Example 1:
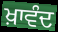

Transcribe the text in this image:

ਖ਼ਾਵੰਦ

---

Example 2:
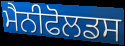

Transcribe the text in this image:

ਮੈਨੀਫੋਲਡਸ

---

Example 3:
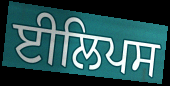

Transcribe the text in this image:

ਈਲਿਪਸ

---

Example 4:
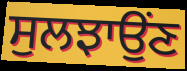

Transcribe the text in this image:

ਸੁਲਝਾਉਂਣ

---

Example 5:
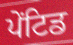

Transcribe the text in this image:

ਪੇਂਟਿਡ